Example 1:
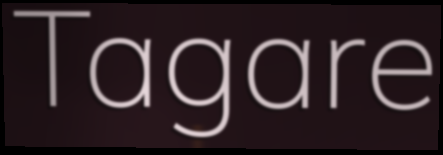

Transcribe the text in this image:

Tagare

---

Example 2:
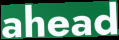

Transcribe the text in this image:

ahead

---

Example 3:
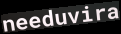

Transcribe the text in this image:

needuvira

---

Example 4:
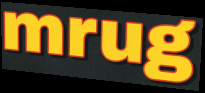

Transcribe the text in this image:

mrug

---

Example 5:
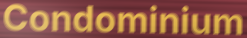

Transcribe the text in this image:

Condominium